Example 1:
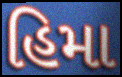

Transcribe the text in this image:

હિમા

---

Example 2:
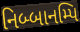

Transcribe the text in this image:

નિબ્બાનમ્પિ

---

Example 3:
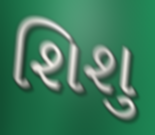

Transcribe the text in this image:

શિશુ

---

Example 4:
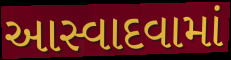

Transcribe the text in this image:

આસ્વાદવામાં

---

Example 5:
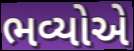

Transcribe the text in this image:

ભવ્યોએ